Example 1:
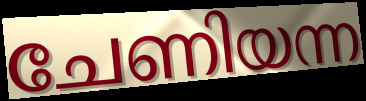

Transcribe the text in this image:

ചേണിയന്ന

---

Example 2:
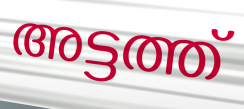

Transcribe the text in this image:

അട്ടത്ത്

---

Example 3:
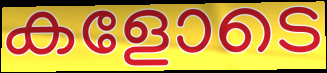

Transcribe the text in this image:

കളോടെ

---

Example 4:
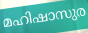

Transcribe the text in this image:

മഹിഷാസുര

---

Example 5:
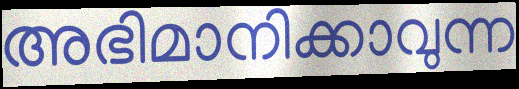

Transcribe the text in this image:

അഭിമാനിക്കാവുന്ന